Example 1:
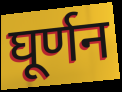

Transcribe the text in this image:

घूर्णन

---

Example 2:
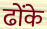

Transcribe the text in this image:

ढोंके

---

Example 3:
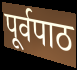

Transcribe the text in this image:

पूर्वपाठ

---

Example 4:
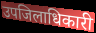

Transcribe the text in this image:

उपजिलाधिकारी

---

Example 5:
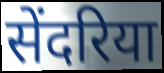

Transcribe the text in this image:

सेंदरिया